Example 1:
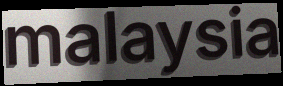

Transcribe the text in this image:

malaysia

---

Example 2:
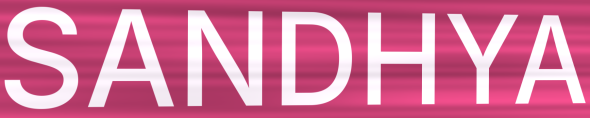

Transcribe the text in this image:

SANDHYA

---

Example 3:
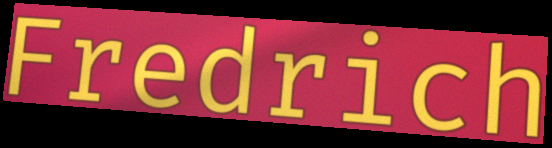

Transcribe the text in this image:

Fredrich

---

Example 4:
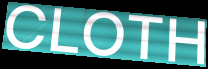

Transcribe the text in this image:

CLOTH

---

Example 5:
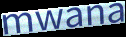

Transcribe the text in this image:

mwana